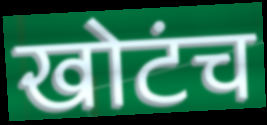
खोटंच